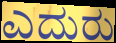
ಎದುರು